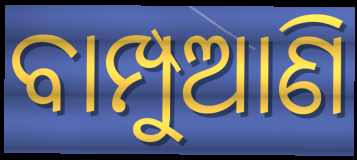
ବାମ୍ପୁଆଣି